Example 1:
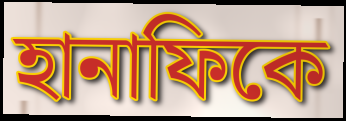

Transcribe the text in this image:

হানাফিকে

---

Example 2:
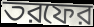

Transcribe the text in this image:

তরফের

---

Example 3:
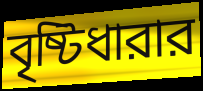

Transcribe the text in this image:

বৃষ্টিধারার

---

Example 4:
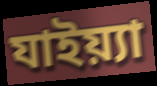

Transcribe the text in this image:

যাইয়্যা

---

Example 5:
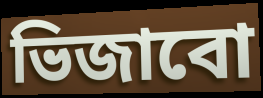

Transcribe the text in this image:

ভিজাবো